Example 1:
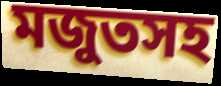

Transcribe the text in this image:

মজুতসহ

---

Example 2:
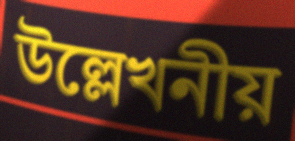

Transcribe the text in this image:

উল্লেখনীয়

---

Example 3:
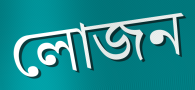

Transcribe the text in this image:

লোজন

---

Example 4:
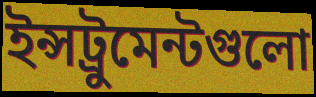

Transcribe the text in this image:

ইন্সট্রুমেন্টগুলো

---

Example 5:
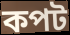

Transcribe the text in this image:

কপট